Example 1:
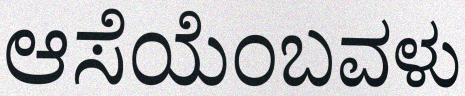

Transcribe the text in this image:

ಆಸೆಯೆಂಬವಳು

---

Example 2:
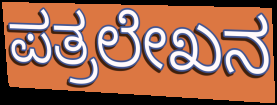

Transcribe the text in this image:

ಪತ್ರಲೇಖನ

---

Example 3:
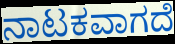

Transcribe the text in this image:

ನಾಟಕವಾಗದೆ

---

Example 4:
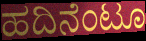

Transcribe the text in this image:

ಹದಿನೆಂಟೂ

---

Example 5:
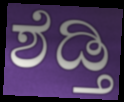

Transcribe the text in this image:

ಶೆಡ್ತಿ